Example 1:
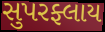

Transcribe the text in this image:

સુપરફ્લાય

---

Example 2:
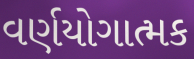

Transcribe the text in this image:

વર્ણયોગાત્મક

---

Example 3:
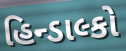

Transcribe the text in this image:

હિન્ડાલ્કો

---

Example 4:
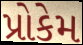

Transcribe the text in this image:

પ્રોકેમ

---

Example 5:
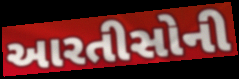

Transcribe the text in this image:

આરતીસોની